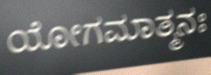
ಯೋಗಮಾತ್ಮನಃ